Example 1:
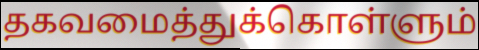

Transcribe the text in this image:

தகவமைத்துக்கொள்ளும்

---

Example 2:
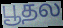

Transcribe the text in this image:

பூதல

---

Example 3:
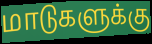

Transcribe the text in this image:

மாடுகளுக்கு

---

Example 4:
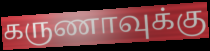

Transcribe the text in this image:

கருணாவுக்கு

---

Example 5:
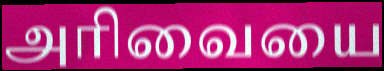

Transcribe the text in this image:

அரிவையை